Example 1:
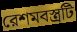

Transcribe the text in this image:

রেশমবস্ত্রটি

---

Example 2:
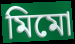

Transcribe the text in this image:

মিমো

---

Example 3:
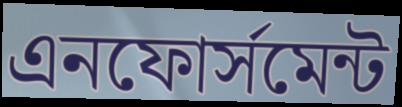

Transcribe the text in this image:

এনফোর্সমেন্ট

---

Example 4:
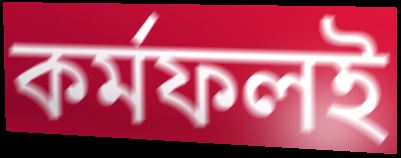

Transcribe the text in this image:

কর্মফলই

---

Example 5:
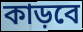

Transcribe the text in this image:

কাড়বে